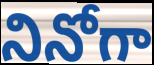
నినోగా